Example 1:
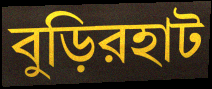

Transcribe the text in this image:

বুড়িরহাট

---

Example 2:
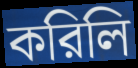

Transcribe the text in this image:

করিলি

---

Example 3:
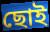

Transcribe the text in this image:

ছোই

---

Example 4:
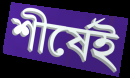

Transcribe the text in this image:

শীর্ষেই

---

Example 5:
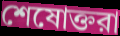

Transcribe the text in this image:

শেষোক্তরা